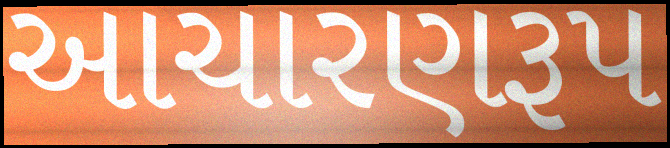
આચારણરૂપ